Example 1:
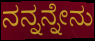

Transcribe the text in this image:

ನನ್ನನ್ನೇನು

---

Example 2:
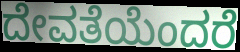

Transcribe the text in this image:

ದೇವತೆಯೆಂದರೆ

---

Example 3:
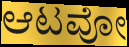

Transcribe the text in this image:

ಆಟವೋ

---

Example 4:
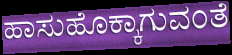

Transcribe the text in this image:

ಹಾಸುಹೊಕ್ಕಾಗುವಂತೆ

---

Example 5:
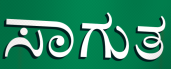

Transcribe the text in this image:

ಸಾಗುತ